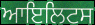
ਆਇਲਿਟਸ